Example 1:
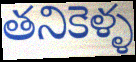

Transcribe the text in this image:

తనికెళ్ళ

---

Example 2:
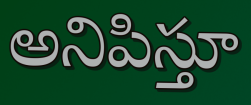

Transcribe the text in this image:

అనిపిస్తూ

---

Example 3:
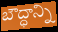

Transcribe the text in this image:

బౌద్ధాన్ని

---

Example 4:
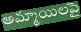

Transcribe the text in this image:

అమ్మాయిలపై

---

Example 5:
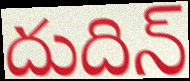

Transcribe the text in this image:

దుదిన్